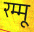
रम्मू